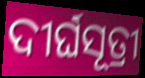
ଦୀର୍ଘସୂତ୍ରୀ